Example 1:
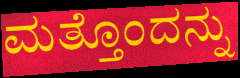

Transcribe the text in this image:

ಮತ್ತೊಂದನ್ನು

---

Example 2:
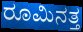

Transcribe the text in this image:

ರೂಮಿನತ್ತ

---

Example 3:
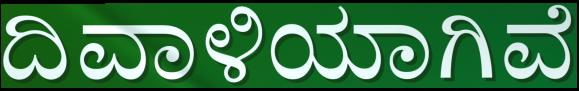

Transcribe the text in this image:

ದಿವಾಳಿಯಾಗಿವೆ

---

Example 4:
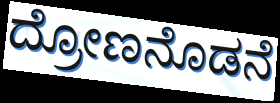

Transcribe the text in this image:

ದ್ರೋಣನೊಡನೆ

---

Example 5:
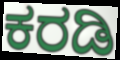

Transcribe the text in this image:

ಕರಡಿ